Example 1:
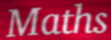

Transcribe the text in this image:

Maths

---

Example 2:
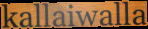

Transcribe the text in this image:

kallaiwalla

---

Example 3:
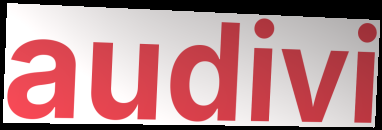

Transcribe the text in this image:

audivi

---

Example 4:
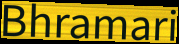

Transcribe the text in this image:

Bhramari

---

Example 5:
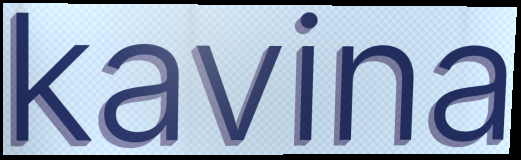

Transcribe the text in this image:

kavina